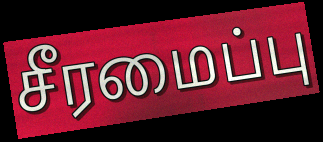
சீரமைப்பு